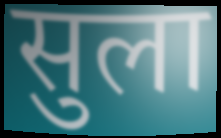
सुला